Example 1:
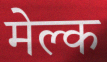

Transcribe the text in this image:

मेल्क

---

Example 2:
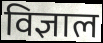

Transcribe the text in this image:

विज्ञाल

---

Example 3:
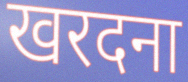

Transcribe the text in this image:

खरदना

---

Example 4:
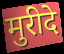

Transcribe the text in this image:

मुरीदे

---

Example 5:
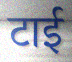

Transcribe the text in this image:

टाई